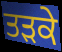
ਤੜਕੇ